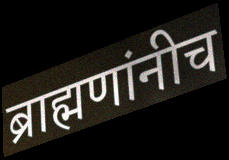
ब्राह्मणांनीच